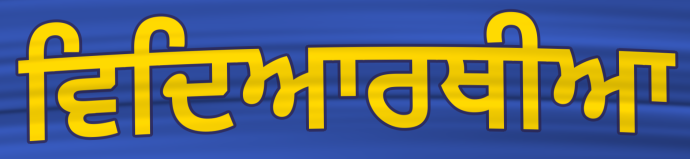
ਵਿਦਿਆਰਥੀਆ